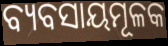
ବ୍ୟବସାୟମୂଳକ